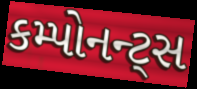
કમ્પોનન્ટ્સ